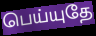
பெய்யுதே